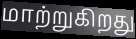
மாற்றுகிறது